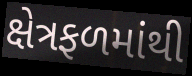
ક્ષેત્રફળમાંથી